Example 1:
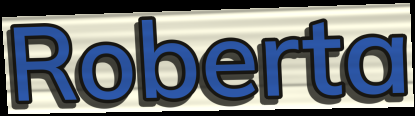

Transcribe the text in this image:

Roberta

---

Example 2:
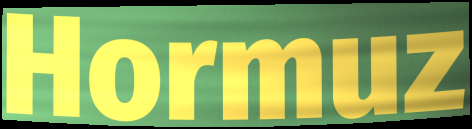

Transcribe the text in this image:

Hormuz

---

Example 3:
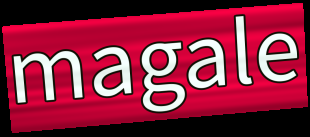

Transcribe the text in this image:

magale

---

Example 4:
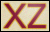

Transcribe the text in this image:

XZ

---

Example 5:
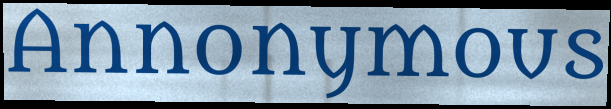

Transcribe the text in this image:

Annonymous